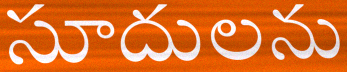
సూదులను